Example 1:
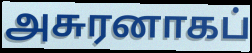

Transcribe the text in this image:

அசுரனாகப்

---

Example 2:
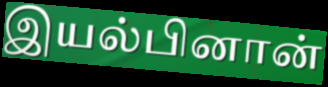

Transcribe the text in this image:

இயல்பினான்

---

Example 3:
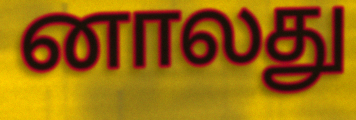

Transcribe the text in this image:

னாலது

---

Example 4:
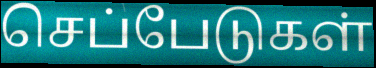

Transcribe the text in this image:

செப்பேடுகள்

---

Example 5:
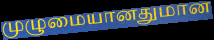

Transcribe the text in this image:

முழுமையானதுமான